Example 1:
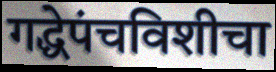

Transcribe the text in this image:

गद्धेपंचविशीचा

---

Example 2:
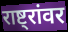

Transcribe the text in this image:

राष्ट्रांवर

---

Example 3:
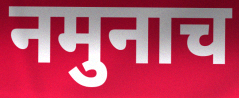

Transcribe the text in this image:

नमुनाच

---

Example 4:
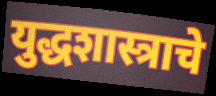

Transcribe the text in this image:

युद्धशास्त्राचे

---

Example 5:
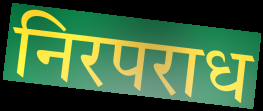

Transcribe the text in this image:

निरपराध